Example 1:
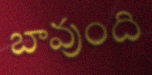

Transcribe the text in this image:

బావుంది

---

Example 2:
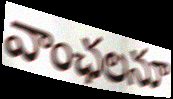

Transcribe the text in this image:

వాంఛలనూ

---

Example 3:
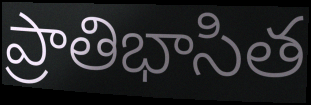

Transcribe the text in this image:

ప్రాతిభాసిత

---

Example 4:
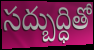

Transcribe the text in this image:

సద్బుద్ధితో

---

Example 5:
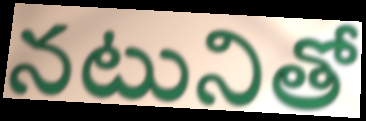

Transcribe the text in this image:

నటునితో